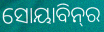
ସୋୟାବିନ୍‌ର